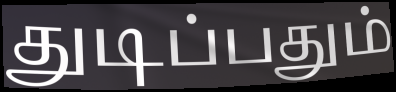
துடிப்பதும்